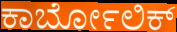
ಕಾರ್ಬೋಲಿಕ್